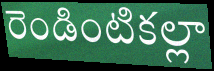
రెండింటికల్లా